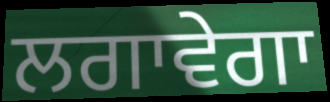
ਲਗਾਵੇਗਾ